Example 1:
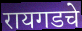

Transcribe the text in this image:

रायगडचे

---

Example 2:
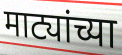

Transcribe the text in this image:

माट्यांच्या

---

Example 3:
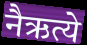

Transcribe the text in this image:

नैऋत्ये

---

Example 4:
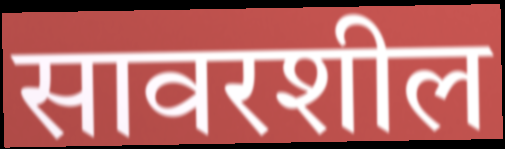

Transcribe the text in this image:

सावरशील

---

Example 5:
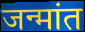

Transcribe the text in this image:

जन्मांत